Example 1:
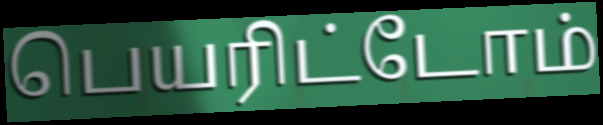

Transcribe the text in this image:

பெயரிட்டோம்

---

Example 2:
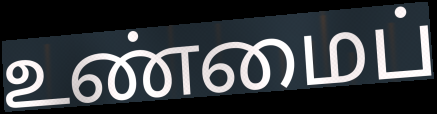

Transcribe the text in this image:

உண்மைப்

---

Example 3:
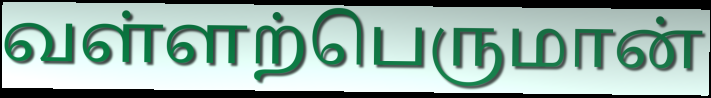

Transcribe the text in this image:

வள்ளற்பெருமான்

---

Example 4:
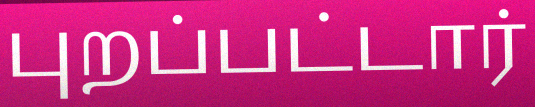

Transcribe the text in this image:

புறப்பட்டார்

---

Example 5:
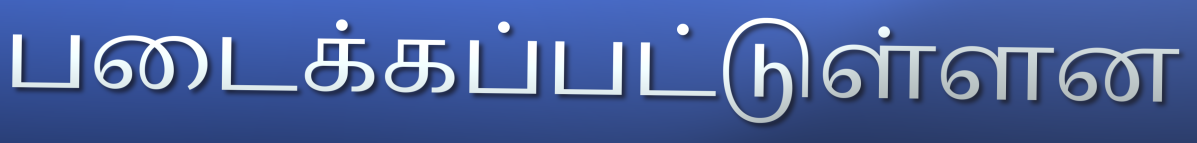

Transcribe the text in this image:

படைக்கப்பட்டுள்ளன